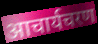
आचार्यचरण